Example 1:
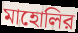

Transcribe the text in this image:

মাহোলির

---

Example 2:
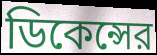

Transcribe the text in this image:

ডিকেন্সের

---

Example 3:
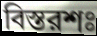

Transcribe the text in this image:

বিস্তরশঃ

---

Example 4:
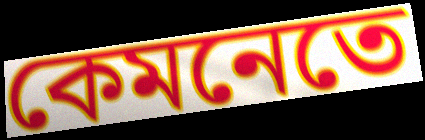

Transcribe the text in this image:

কেমনেতে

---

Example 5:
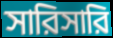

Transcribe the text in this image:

সারিসারি